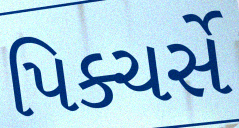
પિક્ચર્સે